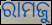
ରାମଜୁ